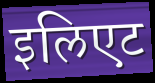
इलिएट